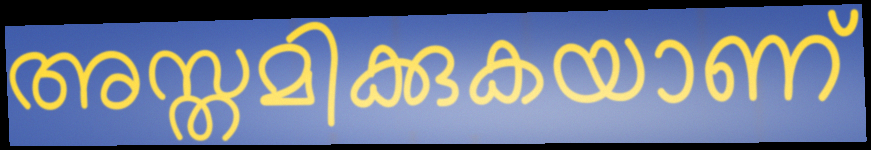
അസ്തമിക്കുകയാണ്